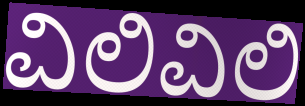
ವಿಲಿವಿಲಿ